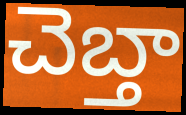
చెబ్తా